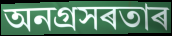
অনগ্ৰসৰতাৰ